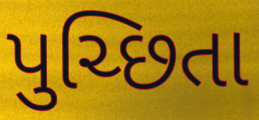
પુચ્છિતા